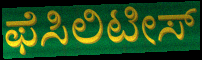
ಫೆಸಿಲಿಟೀಸ್